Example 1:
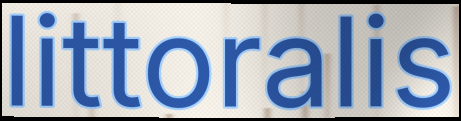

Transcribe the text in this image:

littoralis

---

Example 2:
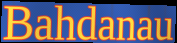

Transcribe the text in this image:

Bahdanau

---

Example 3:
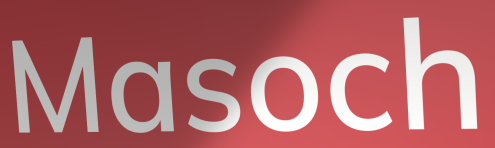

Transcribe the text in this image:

Masoch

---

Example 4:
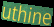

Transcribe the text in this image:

uthine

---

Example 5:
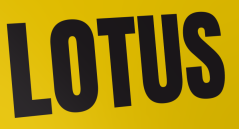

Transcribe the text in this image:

LOTUS